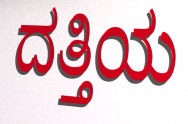
ದತ್ತಿಯ